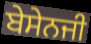
ਬੇਸੇਨਜੀ